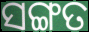
ସଙ୍ଗତ